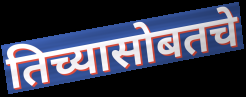
तिच्यासोबतचे